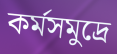
কর্মসমুদ্রে